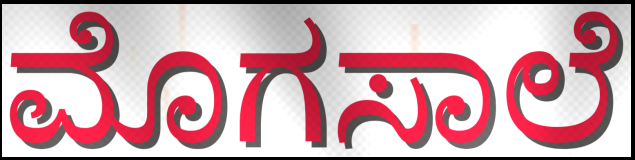
ಮೊಗಸಾಲೆ